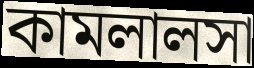
কামলালসা